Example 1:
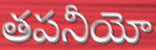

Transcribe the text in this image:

తపనీయో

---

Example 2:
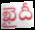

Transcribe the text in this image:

ఖైదీ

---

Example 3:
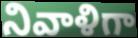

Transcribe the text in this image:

నివాళిగా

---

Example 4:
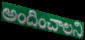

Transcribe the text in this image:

అందించాలని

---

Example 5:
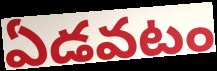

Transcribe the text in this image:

ఏడవటం